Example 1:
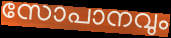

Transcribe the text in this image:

സോപാനവും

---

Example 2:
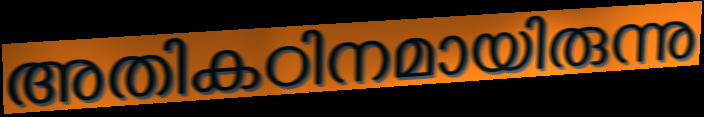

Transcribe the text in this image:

അതികഠിനമായിരുന്നു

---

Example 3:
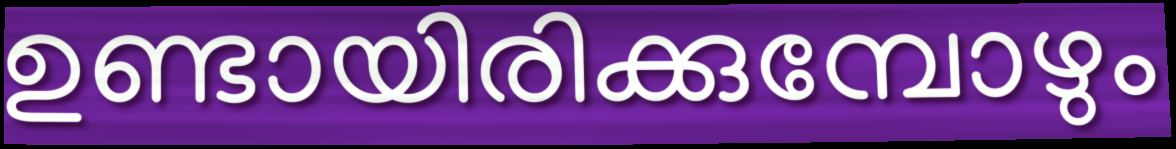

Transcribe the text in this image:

ഉണ്ടായിരിക്കുമ്പോഴും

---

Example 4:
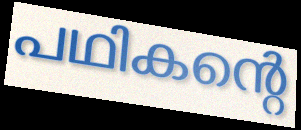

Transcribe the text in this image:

പഥികന്റെ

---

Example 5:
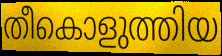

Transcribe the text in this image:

തീകൊളുത്തിയ